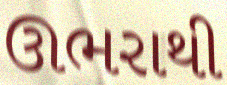
ઊભરાથી